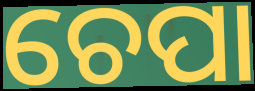
ଚେପା